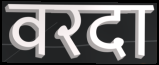
वरदा